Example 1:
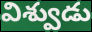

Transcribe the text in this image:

విశ్వుడు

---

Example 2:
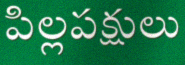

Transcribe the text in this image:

పిల్లపక్షులు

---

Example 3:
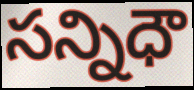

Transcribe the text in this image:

సన్నిధౌ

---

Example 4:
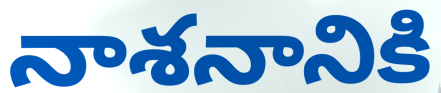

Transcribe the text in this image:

నాశనానికి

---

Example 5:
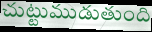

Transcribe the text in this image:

చుట్టుముడుతుంది